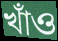
খাঁও